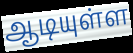
ஆடியுள்ள